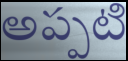
అప్పటి